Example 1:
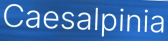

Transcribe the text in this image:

Caesalpinia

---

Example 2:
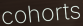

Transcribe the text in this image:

cohorts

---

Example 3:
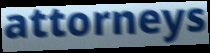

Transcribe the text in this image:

attorneys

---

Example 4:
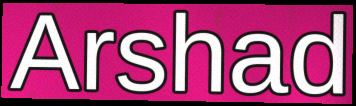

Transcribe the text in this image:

Arshad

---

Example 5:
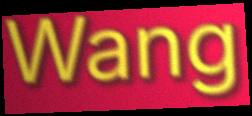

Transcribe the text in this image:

Wang